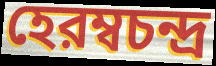
হেরম্বচন্দ্র